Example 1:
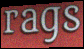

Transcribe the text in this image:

rags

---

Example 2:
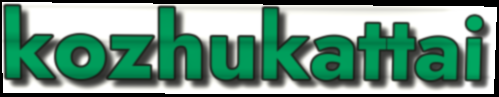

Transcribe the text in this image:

kozhukattai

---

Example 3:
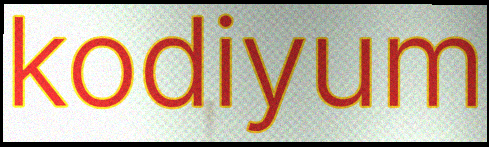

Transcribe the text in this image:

kodiyum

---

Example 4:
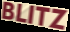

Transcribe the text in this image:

BLITZ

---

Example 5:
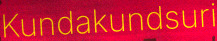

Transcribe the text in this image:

Kundakundsuri